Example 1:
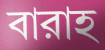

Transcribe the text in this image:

বারাহ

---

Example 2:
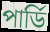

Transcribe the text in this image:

পার্ডি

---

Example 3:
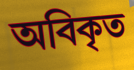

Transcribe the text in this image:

অবিকৃত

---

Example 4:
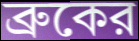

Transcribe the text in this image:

ব্রুকের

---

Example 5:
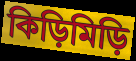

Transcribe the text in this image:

কিড়িমিড়ি